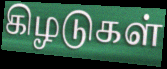
கிழடுகள்